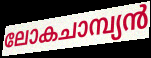
ലോകചാമ്പ്യൻ